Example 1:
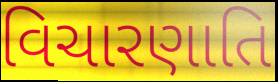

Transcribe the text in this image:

વિચારણાતિ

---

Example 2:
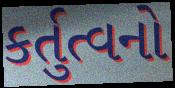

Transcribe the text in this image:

કર્તુત્વનો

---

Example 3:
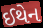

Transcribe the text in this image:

ઈથેન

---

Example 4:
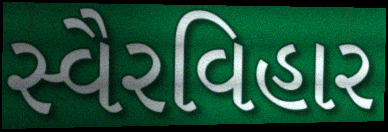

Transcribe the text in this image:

સ્વૈરવિહાર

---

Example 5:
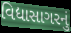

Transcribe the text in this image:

વિદ્યાસાગરનું